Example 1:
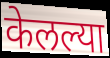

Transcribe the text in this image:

केलल्या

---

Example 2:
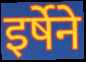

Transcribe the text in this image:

इर्षेने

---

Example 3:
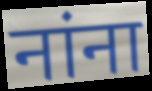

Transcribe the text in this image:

नांना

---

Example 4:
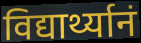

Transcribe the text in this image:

विद्यार्थ्यानं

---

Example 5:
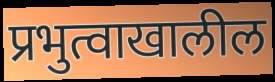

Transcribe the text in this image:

प्रभुत्वाखालील